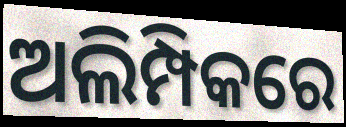
ଅଲିମ୍ପିକରେ